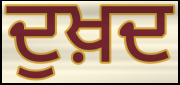
ਦੁਖ਼ਦ